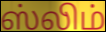
ஸ்லிம்